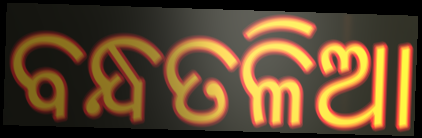
ବନ୍ଧତଳିଆ